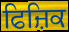
ਫਿਜ਼ਿਕ